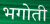
भगोती